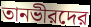
তানভীরদের